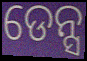
ଡେନ୍ସ